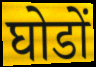
घोडों